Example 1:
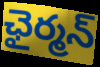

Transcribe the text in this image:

ఛైర్మన్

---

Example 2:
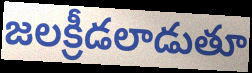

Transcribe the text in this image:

జలక్రీడలాడుతూ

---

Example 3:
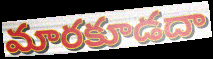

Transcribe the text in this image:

మారకూడదా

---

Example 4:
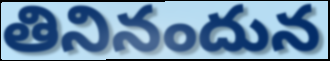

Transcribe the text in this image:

తినినందున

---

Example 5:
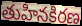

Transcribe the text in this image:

తుహినకిరణ